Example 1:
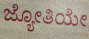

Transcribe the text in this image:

ಜ್ಯೋತಿಯೇ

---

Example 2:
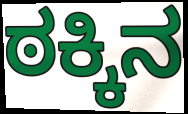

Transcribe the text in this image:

ಠಕ್ಕಿನ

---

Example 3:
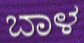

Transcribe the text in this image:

ಬಾಳ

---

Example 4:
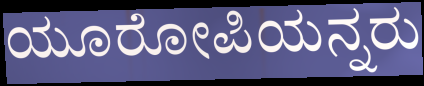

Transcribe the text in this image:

ಯೂರೋಪಿಯನ್ನರು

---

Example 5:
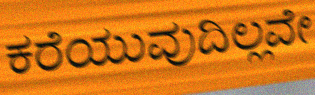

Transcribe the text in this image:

ಕರೆಯುವುದಿಲ್ಲವೇ